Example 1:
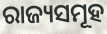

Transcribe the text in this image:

ରାଜ୍ୟସମୂହ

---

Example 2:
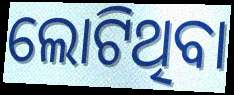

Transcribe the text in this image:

ଲୋଟିଥିବା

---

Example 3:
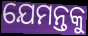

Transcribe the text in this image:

ଯେମନ୍ତକୁ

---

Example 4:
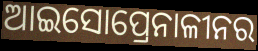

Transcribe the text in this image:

ଆଇସୋପ୍ରେନାଳୀନର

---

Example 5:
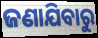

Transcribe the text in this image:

ଜଣାଯିବାରୁ